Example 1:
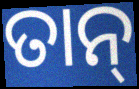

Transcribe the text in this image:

ତାନ୍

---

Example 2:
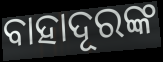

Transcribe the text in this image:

ବାହାଦୂରଙ୍କ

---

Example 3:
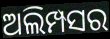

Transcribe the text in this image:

ଅଲିମ୍ପସର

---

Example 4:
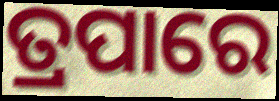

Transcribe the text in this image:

ତ୍ରପାରେ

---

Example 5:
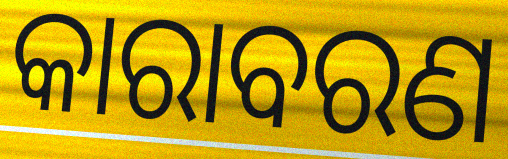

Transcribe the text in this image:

କାରାବରଣ